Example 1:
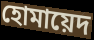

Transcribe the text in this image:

হোমায়েদ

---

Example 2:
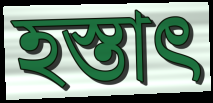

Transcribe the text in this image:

হস্তাৎ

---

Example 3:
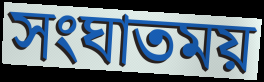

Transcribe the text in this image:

সংঘাতময়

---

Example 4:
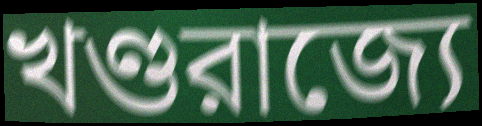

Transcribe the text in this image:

খণ্ডরাজ্যে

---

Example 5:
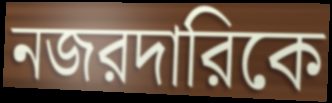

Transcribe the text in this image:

নজরদারিকে